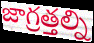
జాగ్రత్తల్ని